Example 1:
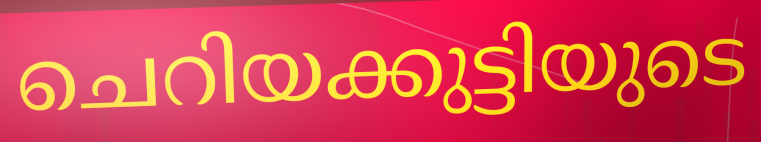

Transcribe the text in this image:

ചെറിയക്കുട്ടിയുടെ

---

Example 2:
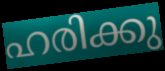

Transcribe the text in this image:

ഹരിക്കു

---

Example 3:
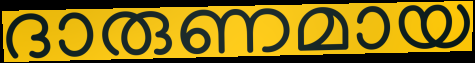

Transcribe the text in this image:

ദാരുണമായ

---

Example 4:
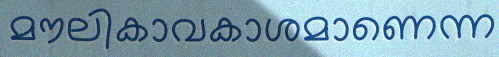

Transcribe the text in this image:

മൗലികാവകാശമാണെന്ന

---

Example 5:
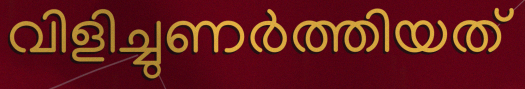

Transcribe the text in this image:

വിളിച്ചുണർത്തിയത്